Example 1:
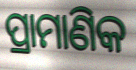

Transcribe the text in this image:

ପ୍ରାମାଣିକ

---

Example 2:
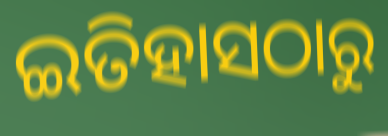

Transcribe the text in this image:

ଇତିହାସଠାରୁ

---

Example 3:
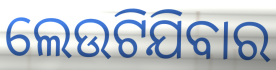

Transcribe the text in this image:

ଲେଉଟିଯିବାର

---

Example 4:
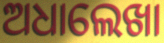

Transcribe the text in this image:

ଅଧାଲେଖା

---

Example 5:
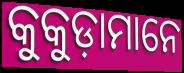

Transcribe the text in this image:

କୁକୁଡ଼ାମାନେ